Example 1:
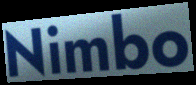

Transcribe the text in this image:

Nimbo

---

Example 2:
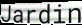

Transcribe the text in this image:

Jardin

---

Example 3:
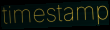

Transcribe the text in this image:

timestamp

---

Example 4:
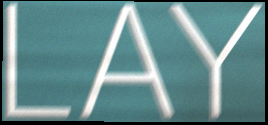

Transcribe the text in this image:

LAY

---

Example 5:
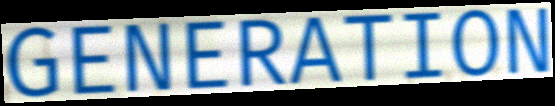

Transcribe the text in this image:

GENERATION